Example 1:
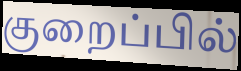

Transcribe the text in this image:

குறைப்பில்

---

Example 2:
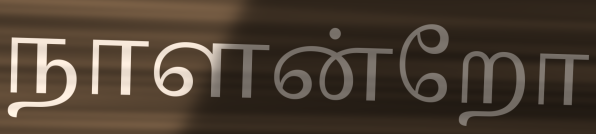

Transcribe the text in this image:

நாளன்றோ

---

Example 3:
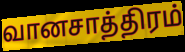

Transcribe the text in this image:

வானசாத்திரம்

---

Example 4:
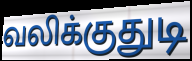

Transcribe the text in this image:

வலிக்குதுடி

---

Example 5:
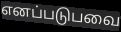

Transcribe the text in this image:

எனப்படுபவை